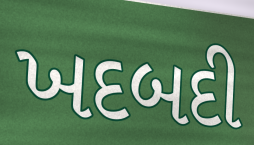
ખદબદી